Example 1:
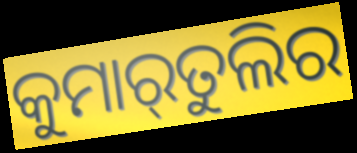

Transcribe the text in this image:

କୁମାର୍‌ତୁଲିର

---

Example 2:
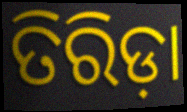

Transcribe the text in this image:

ତିରିଡ଼ା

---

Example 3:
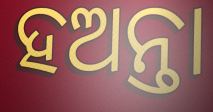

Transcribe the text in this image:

ହଅନ୍ତା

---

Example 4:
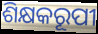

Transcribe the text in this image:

ଶିକ୍ଷକରୂପୀ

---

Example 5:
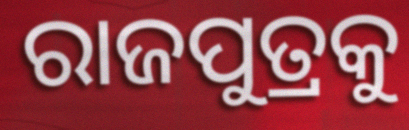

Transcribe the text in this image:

ରାଜପୁତ୍ରକୁ